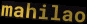
mahilao